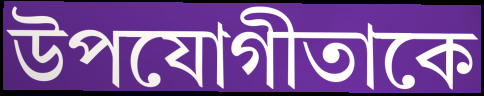
উপযোগীতাকে